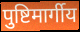
पुष्टिमार्गीय